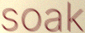
soak